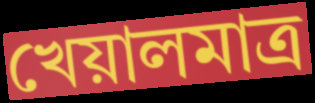
খেয়ালমাত্র